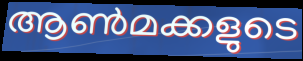
ആൺമക്കളുടെ